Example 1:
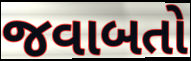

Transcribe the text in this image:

જવાબતો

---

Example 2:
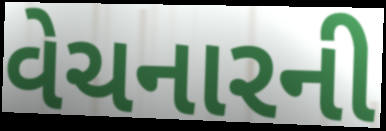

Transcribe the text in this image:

વેચનારની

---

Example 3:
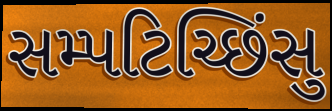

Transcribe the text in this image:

સમ્પટિચ્છિંસુ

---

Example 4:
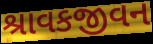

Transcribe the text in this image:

શ્રાવકજીવન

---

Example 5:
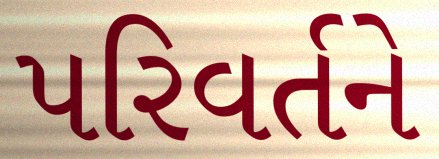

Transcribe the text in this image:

પરિવર્તને